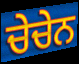
ਚੇਚੇਨ